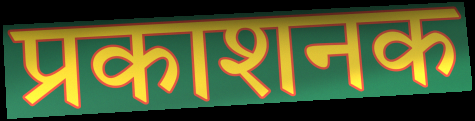
प्रकाशनक